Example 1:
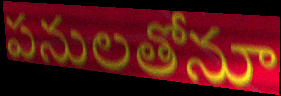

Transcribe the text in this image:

పనులతోనూ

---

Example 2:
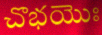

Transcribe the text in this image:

చొభయొః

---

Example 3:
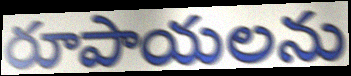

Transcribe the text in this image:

రూపాయలను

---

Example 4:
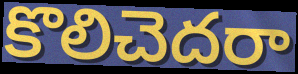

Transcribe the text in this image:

కొలిచెదరా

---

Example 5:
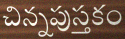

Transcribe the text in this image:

చిన్నపుస్తకం